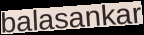
balasankar